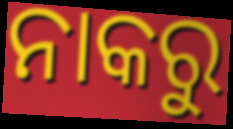
ନାକରୁ